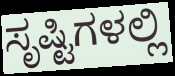
ಸೃಷ್ಟಿಗಳಲ್ಲಿ